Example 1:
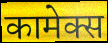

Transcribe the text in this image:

कामेक्स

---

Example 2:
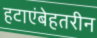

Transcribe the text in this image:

हटाएंबेहतरीन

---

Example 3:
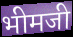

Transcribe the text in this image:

भीमजी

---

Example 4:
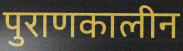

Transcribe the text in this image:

पुराणकालीन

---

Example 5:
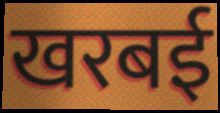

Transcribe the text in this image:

खरबई